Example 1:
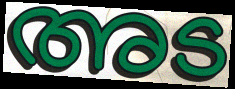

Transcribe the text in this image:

അട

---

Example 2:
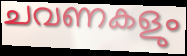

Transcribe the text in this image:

ചവണകളും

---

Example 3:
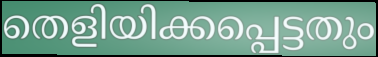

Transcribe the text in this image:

തെളിയിക്കപ്പെട്ടതും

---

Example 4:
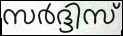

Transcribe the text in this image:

സർദ്ദിസ്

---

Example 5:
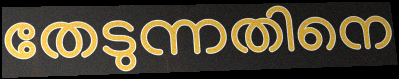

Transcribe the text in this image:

തേടുന്നതിനെ